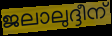
ജലാലുദ്ദീന്